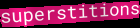
superstitions